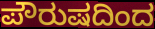
ಪೌರುಷದಿಂದ